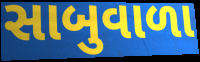
સાબુવાળા